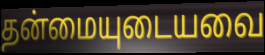
தன்மையுடையவை